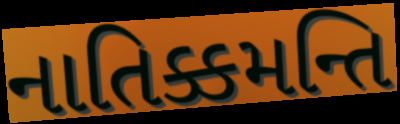
નાતિક્કમન્તિ